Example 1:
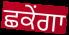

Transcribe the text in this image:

ਛਕੇਂਗਾ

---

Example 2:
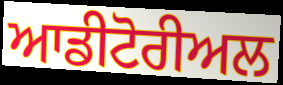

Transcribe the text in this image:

ਆਡੀਟੋਰੀਅਲ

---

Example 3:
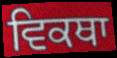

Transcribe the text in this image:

ਵਿਕਥਾ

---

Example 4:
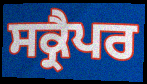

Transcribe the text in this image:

ਸਕ੍ਰੈਪਰ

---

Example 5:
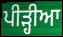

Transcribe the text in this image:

ਪੀੜ੍ਹੀਆ